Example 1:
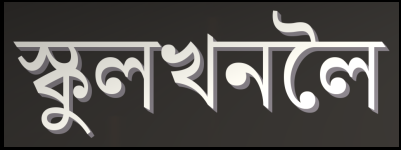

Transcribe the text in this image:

স্কুলখনলৈ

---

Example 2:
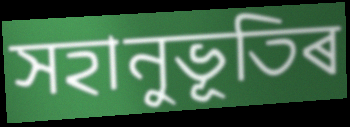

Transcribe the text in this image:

সহানুভূতিৰ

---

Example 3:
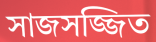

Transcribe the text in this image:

সাজসজ্জিত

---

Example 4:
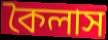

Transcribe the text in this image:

কৈলাস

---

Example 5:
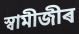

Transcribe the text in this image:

স্বামীজীৰ